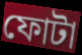
ফোটা